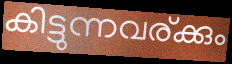
കിട്ടുന്നവര്ക്കും